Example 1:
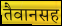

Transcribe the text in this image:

तैवानसह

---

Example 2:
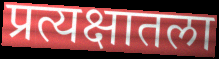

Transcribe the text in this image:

प्रत्यक्षातला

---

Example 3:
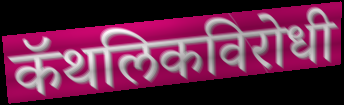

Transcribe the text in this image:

कॅथलिकविरोधी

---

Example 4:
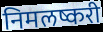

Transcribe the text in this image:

निमलष्करी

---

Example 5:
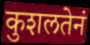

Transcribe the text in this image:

कुशलतेनं